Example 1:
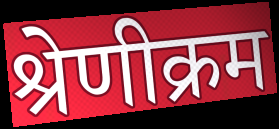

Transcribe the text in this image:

श्रेणीक्रम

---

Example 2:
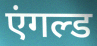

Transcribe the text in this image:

एंगल्ड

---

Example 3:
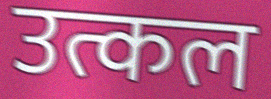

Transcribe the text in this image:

उत्कल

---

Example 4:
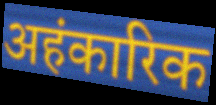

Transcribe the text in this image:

अहंकारिक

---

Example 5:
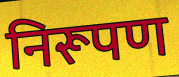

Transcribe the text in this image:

निरूपण